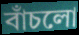
বাঁচলো